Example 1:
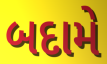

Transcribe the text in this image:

બદામે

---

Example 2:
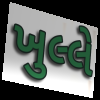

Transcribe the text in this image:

ખુલ્લે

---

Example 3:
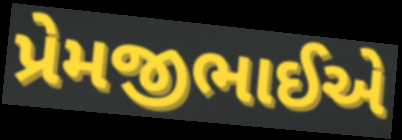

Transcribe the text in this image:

પ્રેમજીભાઈએ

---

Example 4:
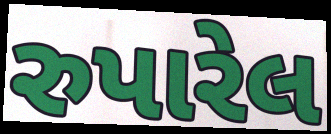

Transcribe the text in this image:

રુપારેલ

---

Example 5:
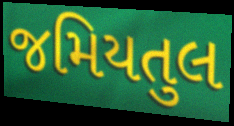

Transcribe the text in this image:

જમિયતુલ